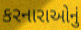
કરનારાઓનું